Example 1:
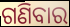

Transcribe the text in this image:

ଗଣିବାର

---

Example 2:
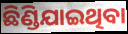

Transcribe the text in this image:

ଛିଣ୍ଡିଯାଇଥିବା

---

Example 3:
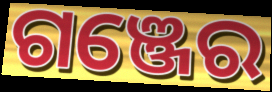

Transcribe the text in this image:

ଗଞ୍ଜେର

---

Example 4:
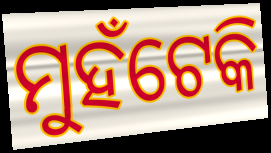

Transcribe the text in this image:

ମୁହଁଟେକି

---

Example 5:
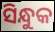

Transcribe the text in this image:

ସିନ୍ଧୁକ